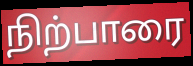
நிற்பாரை